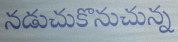
నడుచుకొనుచున్న